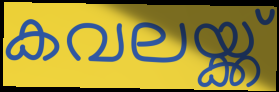
കവലയ്ക്ക്